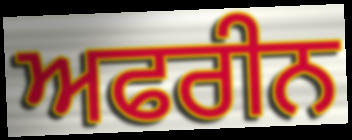
ਅਫਰੀਨ